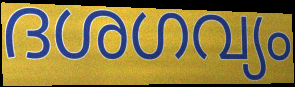
ദശഗവ്യം